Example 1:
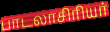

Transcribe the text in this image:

பாடலாசிரியர்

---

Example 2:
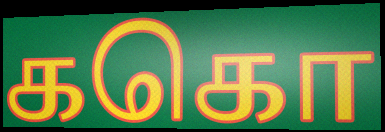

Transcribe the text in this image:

ககொ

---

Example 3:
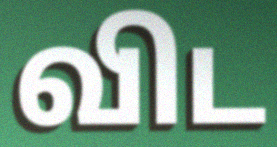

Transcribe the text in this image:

விட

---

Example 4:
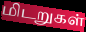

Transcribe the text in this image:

மிடறுகள்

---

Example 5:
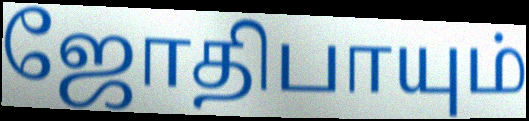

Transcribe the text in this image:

ஜோதிபாயும்